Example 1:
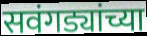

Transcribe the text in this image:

सवंगड्यांच्या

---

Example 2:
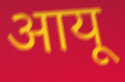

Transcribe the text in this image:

आयू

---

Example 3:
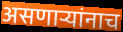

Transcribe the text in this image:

असणार्‍यांनाच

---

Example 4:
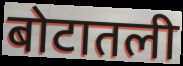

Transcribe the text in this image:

बोटातली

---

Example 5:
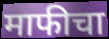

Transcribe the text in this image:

माफीचा